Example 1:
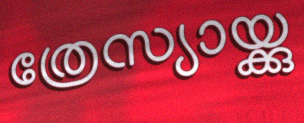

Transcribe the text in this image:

ത്രേസ്യായ്ക്കു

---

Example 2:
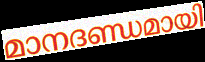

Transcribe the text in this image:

മാനദണ്ഡമായി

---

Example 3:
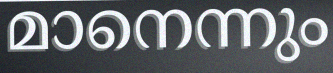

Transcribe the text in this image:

മാനെന്നും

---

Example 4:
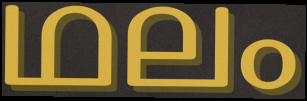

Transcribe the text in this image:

ഥലം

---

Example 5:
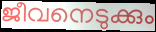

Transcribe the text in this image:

ജീവനെടുക്കും